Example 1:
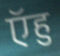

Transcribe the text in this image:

ऍहु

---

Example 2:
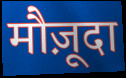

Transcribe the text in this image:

मौज़ूदा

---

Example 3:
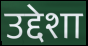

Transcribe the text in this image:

उद्देशा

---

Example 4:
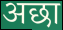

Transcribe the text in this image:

अछा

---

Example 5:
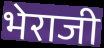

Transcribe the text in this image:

भेराजी